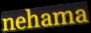
nehama